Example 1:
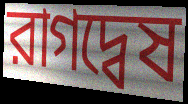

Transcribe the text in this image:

রাগদ্বেষ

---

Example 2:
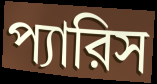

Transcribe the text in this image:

প্যারিস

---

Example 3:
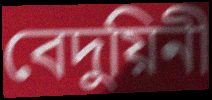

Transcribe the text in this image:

বেদুয়িনী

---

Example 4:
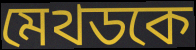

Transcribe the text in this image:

মেথডকে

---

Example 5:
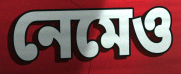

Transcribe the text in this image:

নেমেও